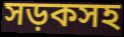
সড়কসহ